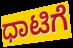
ಧಾಟಿಗೆ